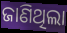
ଜାଣିଥିଲା